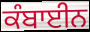
ਕੰਬਾਈਨ